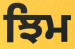
ਝਿਮ